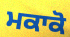
ਮਕਾਕੋ